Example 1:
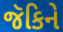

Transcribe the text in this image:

જૅકિને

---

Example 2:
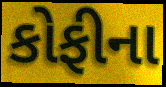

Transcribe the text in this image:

કોફીના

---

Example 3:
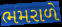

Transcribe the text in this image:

ભમરાળે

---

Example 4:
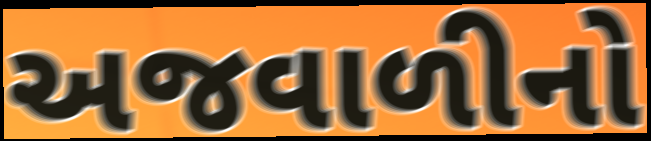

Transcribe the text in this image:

અજવાળીનો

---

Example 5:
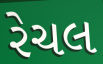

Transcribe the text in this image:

રેચલ